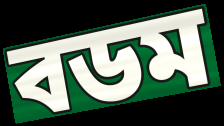
বডম